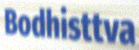
Bodhisttva